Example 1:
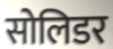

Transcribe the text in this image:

सोलिडर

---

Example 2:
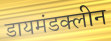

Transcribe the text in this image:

डायमंडक्लीन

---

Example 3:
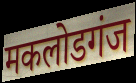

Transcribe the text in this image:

मकलोडगंज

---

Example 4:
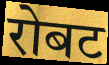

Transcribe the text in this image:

रोबट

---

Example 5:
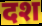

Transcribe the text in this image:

दश